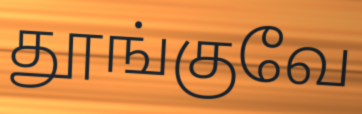
தூங்குவே